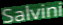
Salvini